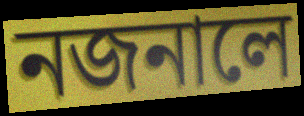
নজনালে